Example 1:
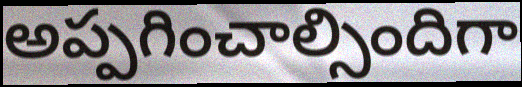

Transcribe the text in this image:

అప్పగించాల్సిందిగా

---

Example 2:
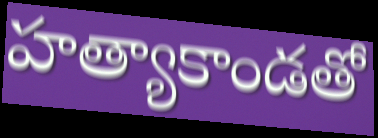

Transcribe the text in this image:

హత్యాకాండతో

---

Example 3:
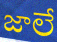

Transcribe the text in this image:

జాలే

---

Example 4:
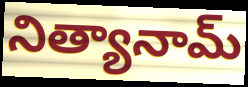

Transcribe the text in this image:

నిత్యానామ్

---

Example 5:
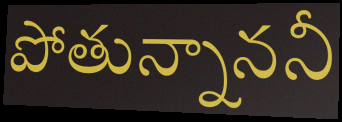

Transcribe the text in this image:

పోతున్నాననీ